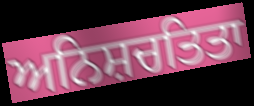
ਅਨਿਸ਼ਚਤਿਤਾ